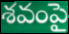
శవంపై